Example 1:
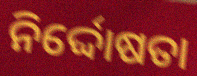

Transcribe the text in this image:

ନିର୍ଦ୍ଦୋଷତା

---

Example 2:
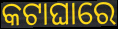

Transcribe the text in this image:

କଟାଘାରେ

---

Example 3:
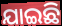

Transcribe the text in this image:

ଯାଇଛି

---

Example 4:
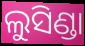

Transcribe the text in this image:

ଲୁସିଣ୍ଡା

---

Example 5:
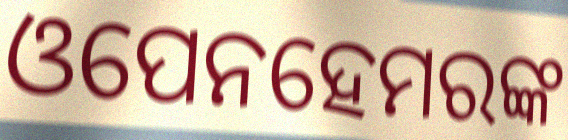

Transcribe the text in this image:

ଓପେନହେମରଙ୍କ